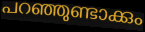
പറഞ്ഞുണ്ടാക്കും